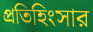
প্রতিহিংসার